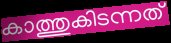
കാത്തുകിടന്നത്